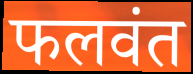
फलवंत